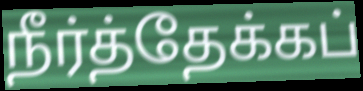
நீர்த்தேக்கப்